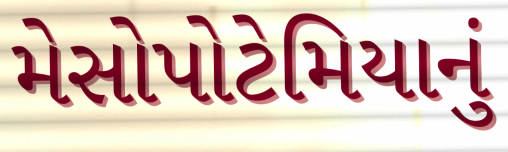
મેસોપોટેમિયાનું